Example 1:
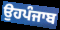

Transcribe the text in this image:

ਉਹਪੰਜਾਬ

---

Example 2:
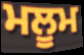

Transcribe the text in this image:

ਮਲੂਮ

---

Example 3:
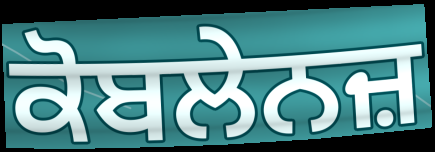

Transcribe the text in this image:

ਕੋਬਲੇਨਜ਼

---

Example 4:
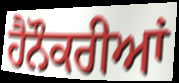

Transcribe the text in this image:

ਹੈਨੌਕਰੀਆਂ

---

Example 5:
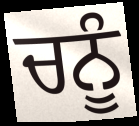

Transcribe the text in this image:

ਚਨੂੰ